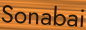
Sonabai